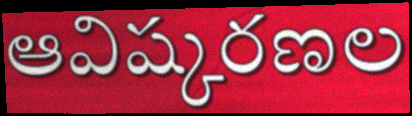
ఆవిష్కరణల